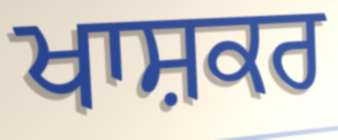
ਖਾਸ਼ਕਰ